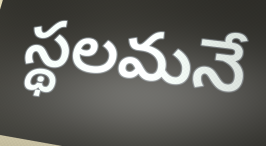
స్థలమనే